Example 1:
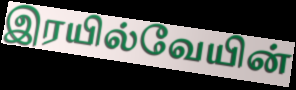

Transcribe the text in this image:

இரயில்வேயின்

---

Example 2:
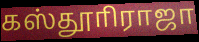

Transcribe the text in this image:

கஸ்தூரிராஜா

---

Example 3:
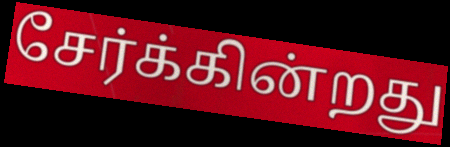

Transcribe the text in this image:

சேர்க்கின்றது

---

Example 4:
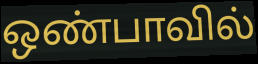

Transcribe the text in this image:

ஒண்பாவில்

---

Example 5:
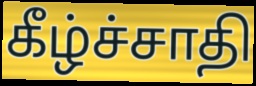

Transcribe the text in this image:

கீழ்ச்சாதி